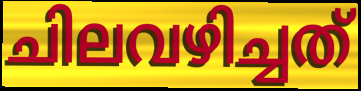
ചിലവഴിച്ചത്